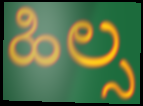
ಹಿಲ್ಸ